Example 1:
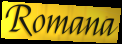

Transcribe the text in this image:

Romana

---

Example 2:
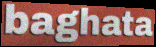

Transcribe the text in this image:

baghata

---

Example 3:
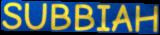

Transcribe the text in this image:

SUBBIAH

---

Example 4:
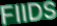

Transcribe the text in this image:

FIIDS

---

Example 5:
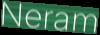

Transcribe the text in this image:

Neram